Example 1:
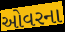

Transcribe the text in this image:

ઓવરના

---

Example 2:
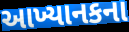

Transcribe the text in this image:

આખ્યાનકના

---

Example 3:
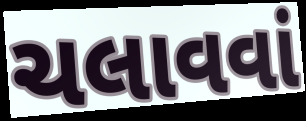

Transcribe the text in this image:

ચલાવવાં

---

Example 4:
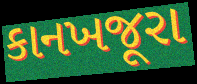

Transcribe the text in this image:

કાનખજૂરા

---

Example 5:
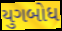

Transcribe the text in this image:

યુગબોધ